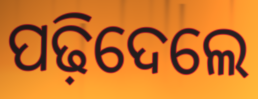
ପଢ଼ିଦେଲେ